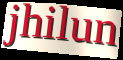
jhilun